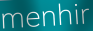
menhir